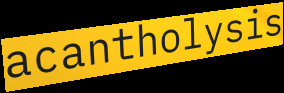
acantholysis